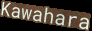
Kawahara